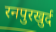
रनपुरखुर्द